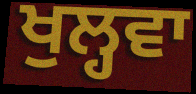
ਖੁਲ੍ਹਵਾ